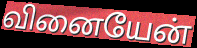
வினையேன்